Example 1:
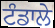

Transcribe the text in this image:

ਟੰਡਾਲੇ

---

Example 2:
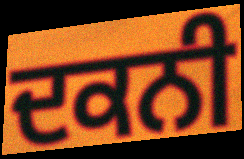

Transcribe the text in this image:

ਦਕਨੀ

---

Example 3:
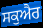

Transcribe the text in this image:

ਸਕੁਐਰ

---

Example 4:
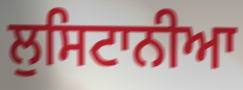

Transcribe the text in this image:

ਲੁਸਿਟਾਨੀਆ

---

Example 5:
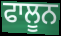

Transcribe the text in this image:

ਫਾਲੂਨ